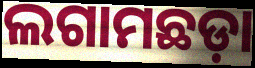
ଲଗାମଛଡ଼ା